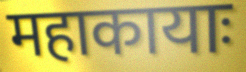
महाकायाः